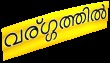
വര്ഗ്ഗത്തിൽ